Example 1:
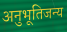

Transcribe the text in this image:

अनुभूतिजन्य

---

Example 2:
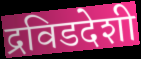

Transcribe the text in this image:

द्रविडदेशी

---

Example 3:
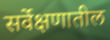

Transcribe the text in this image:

सर्वेक्षणातील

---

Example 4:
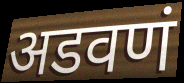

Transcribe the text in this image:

अडवणं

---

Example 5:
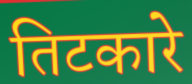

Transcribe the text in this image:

तिटकारे